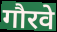
गौरवे